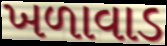
ખળાવાડ